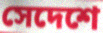
সেদেশে